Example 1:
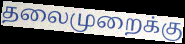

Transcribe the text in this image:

தலைமுறைக்கு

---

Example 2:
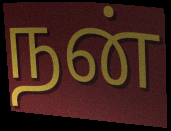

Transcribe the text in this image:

நன்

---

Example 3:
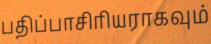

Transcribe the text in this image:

பதிப்பாசிரியராகவும்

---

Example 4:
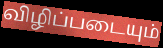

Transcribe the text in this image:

விழிப்படையும்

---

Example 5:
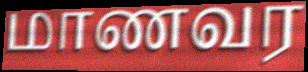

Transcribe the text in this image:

மாணவர